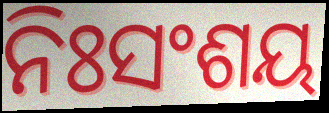
ନିଃସଂଶୟ